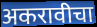
अकरावीचा